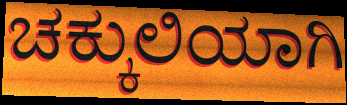
ಚಕ್ಕುಲಿಯಾಗಿ